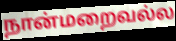
நான்மறைவல்ல